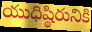
యుధిష్ఠిరునికి